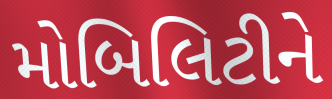
મોબિલિટીને